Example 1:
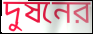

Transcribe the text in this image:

দুষনের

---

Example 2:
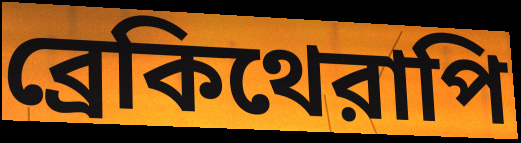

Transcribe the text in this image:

ব্রেকিথেরাপি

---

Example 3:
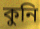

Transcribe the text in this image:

কুনি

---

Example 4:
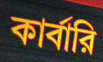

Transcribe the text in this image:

কার্বারি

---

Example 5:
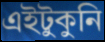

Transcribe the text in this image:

এইটুকুনি